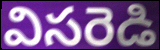
విసరెడి